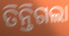
ତିନ୍ତିଗଲା